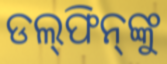
ଡଲ୍‌ଫିନ୍‌ଙ୍କୁ